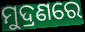
ମୁଦ୍ରଣରେ